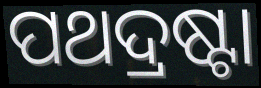
ପଥଦ୍ରଷ୍ଟା